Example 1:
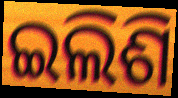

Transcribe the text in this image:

ଇଲିଶି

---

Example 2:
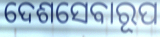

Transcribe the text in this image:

ଦେଶସେବାରୂପ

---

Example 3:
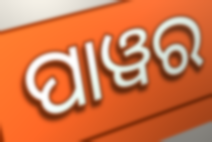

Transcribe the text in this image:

ପାୱର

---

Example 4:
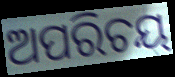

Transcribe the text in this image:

ଅପରିଚୟ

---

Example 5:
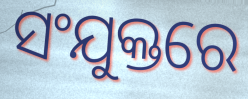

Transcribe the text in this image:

ସଂଯୁକ୍ତରେ